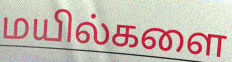
மயில்களை